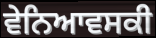
ਵੇਨਿਆਵਸਕੀ